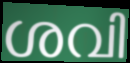
ശവി